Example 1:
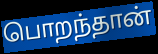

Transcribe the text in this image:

பொறந்தான்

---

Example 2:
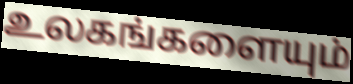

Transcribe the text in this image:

உலகங்களையும்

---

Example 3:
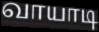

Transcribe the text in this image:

வாயாடி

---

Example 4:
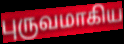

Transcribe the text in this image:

புருவமாகிய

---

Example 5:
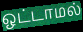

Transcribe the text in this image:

ஒட்டாமல்